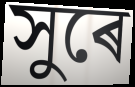
সুৰে